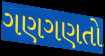
ગણગણતો